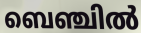
ബെഞ്ചിൽ